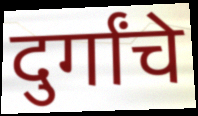
दुर्गांचे